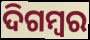
ଦିଗମ୍ବର